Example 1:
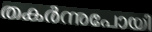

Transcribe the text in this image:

തകർന്നുപോയി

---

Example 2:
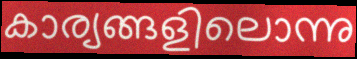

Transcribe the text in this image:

കാര്യങ്ങളിലൊന്നു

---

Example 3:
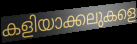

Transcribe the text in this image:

കളിയാക്കലുകളെ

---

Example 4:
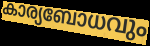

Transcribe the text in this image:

കാര്യബോധവും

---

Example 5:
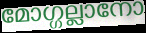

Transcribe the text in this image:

മോഗ്ഗല്ലാനോ